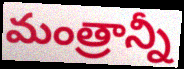
మంత్రాన్నీ